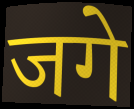
जगे